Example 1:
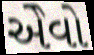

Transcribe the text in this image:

એેવો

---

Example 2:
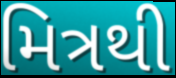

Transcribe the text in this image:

મિત્રથી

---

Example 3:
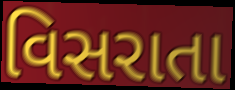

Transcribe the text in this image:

વિસરાતા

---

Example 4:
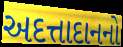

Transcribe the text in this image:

અદત્તાદાનનો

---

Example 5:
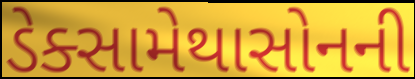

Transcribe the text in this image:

ડેક્સામેથાસોનની